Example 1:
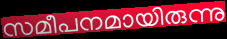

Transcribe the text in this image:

സമീപനമായിരുന്നു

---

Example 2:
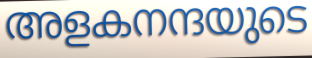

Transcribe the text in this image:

അളകനന്ദയുടെ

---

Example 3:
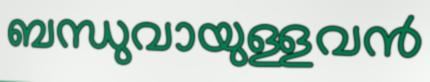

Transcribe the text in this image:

ബന്ധുവായുള്ളവൻ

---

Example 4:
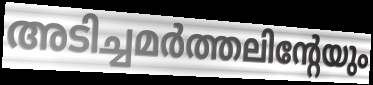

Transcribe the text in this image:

അടിച്ചമർത്തലിന്റേയും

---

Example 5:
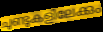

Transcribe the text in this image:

ചുണ്ടുകളിലേക്കും